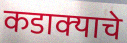
कडाक्याचे